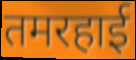
तमरहाई